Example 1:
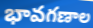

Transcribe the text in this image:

భావగణాల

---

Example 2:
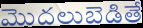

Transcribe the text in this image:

మొదలుబెడితే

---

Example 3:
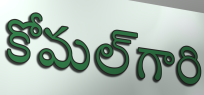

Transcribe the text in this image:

కోమల్‌గారి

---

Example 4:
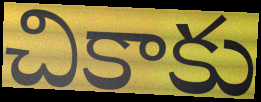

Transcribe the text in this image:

చికాకు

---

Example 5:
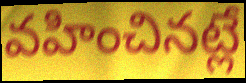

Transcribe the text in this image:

వహించినట్లే